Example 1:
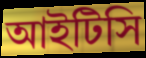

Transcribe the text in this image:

আইটিসি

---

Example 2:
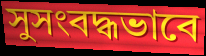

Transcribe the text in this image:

সুসংবদ্ধভাবে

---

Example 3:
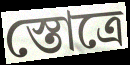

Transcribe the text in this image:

স্তোত্রে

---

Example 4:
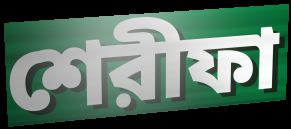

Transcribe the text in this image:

শেরীফা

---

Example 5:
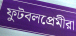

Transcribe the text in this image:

ফুটবলপ্রেমীরা